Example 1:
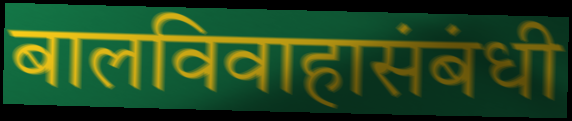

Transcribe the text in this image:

बालविवाहासंबंधी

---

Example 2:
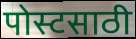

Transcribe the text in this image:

पोस्टसाठी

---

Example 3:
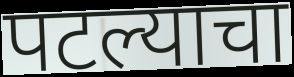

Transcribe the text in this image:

पटल्याचा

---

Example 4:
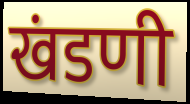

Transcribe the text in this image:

खंडणी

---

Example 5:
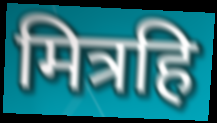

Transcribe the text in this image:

मित्रहि